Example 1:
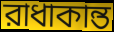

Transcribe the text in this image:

রাধাকান্ত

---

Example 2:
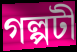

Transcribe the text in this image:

গল্পটী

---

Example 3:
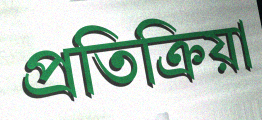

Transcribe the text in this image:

প্রতিক্রিয়া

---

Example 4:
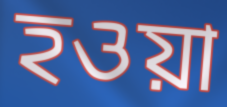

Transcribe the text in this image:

হওয়া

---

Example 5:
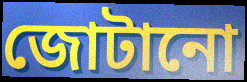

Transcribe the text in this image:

জোটানো